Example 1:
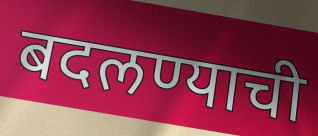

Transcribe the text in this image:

बदलण्याची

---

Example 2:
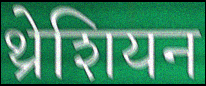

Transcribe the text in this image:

थ्रेशियन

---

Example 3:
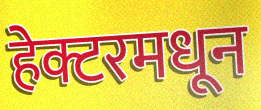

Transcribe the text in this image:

हेक्टरमधून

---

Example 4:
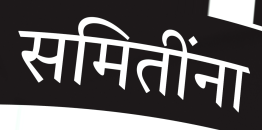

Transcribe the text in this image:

समितींना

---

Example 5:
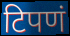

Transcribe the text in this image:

टिपणं